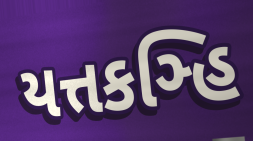
યત્તકઞ્હિ